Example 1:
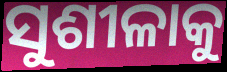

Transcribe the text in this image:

ସୁଶୀଳାକୁ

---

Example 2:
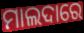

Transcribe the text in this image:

ମାଲଦାରେ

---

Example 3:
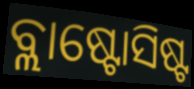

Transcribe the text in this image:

ବ୍ଲାଷ୍ଟୋସିଷ୍ଟ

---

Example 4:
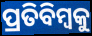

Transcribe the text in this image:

ପ୍ରତିବିମ୍ୱକୁ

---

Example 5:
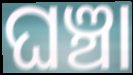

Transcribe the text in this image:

ଘଞ୍ଚା